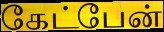
கேட்பேன்